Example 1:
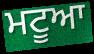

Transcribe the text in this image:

ਮਟੂਆ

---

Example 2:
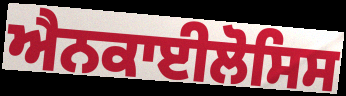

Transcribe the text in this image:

ਐਨਕਾਈਲੋਸਿਸ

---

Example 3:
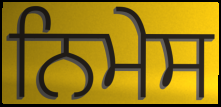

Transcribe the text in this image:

ਨਿਮੇਸ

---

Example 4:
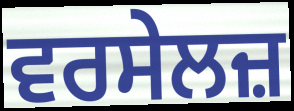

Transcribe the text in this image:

ਵਰਸੇਲਜ਼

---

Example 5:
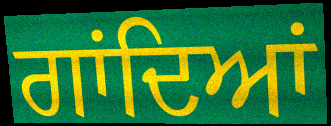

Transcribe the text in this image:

ਗਾਂਦਿਆਂ